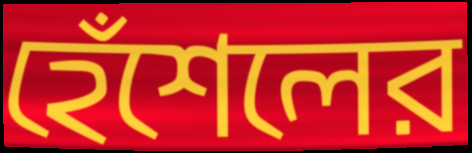
হেঁশেলের